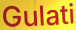
Gulati